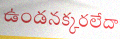
ఉండనక్కరలేదా